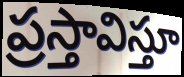
ప్రస్తావిస్తూ